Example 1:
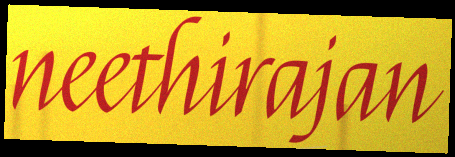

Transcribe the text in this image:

neethirajan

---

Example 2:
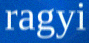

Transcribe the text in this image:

ragyi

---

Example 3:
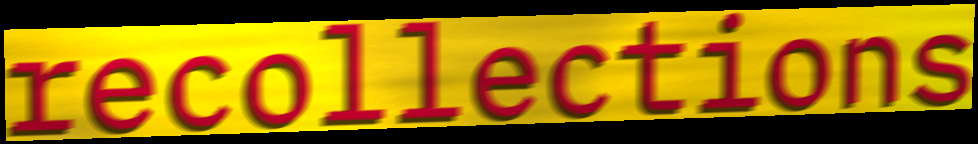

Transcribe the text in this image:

recollections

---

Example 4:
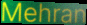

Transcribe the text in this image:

Mehran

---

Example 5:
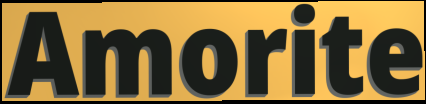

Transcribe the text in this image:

Amorite